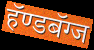
हॅण्डबॅग्ज